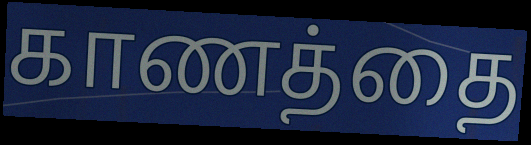
காணத்தை